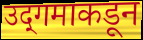
उद्‌गमाकडून